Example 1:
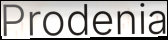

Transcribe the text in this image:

Prodenia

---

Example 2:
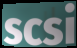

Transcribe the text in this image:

scsi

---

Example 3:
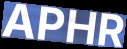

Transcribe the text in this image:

APHR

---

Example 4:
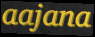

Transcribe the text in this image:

aajana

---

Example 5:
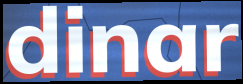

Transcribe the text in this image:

dinar